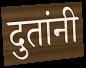
दुतांनी